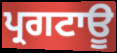
ਪ੍ਰਗਟਾਊ